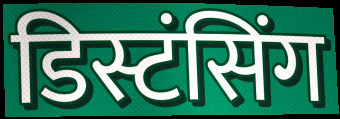
डिस्टंसिंग